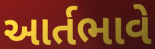
આર્તભાવે